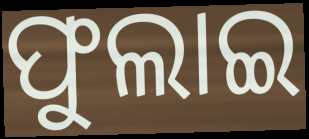
ଫୁଲାଇ